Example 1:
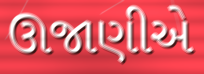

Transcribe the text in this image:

ઊજાણીએ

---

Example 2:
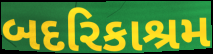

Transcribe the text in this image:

બદરિકાશ્રમ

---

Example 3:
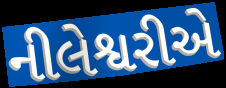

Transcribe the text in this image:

નીલેશ્વરીએ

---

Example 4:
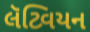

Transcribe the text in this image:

લૅટ્વિયન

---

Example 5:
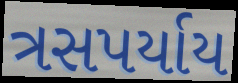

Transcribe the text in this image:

ત્રસપર્યાય